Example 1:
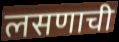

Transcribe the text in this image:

लसणाची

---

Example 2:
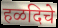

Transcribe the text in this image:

हळदिचे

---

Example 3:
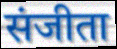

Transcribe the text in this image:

संजीता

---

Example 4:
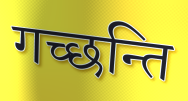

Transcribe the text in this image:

गच्छन्ति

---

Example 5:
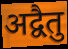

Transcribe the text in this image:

अद्वैतु